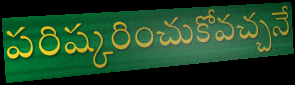
పరిష్కరించుకోవచ్చనే